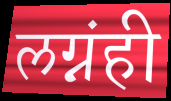
लग्नंही